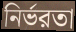
নির্ভরতা